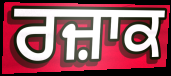
ਰਜ਼ਾਕ